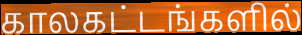
காலகட்டங்களில்